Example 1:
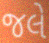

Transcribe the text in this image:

જલે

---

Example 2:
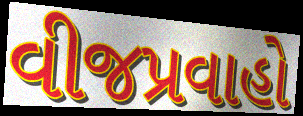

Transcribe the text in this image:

વીજપ્રવાહો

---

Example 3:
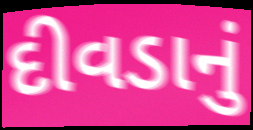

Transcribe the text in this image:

દીવડાનું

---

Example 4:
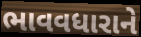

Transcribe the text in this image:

ભાવવધારાને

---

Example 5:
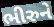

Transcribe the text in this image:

ભીરુને